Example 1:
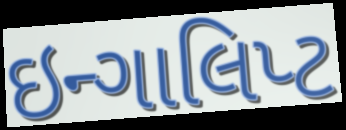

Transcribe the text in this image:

ઇન્ગાલિપ્ટ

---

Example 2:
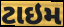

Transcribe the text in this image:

ટાઇમ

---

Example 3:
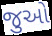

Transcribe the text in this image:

જુઓ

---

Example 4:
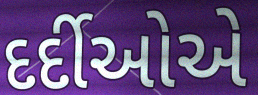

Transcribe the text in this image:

દર્દીઓએ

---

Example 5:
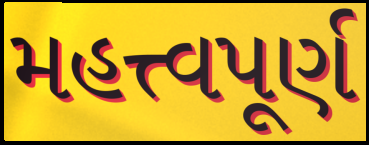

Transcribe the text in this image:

મહત્ત્વપૂર્ણ